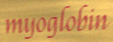
myoglobin